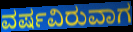
ವರ್ಷವಿರುವಾಗ